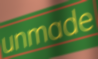
unmade